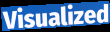
Visualized